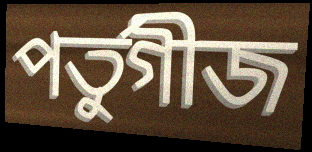
পৰ্তুগীজ